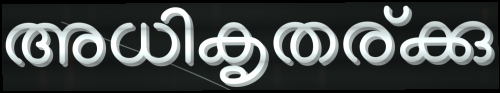
അധികൃതര്ക്കു